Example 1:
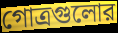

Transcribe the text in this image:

গোত্রগুলোর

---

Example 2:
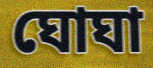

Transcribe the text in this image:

ঘোঘা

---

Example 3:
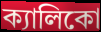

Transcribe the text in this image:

ক্যালিকো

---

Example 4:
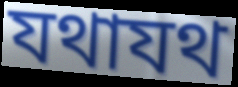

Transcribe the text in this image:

যথাযথ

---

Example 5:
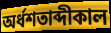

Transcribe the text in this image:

অর্ধশতাব্দীকাল